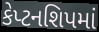
કેપ્ટનશિપમાં